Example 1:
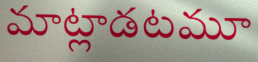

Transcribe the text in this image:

మాట్లాడటమూ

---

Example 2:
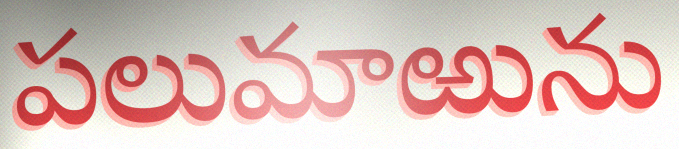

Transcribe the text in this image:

పలుమాఱును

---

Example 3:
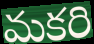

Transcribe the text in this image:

మకరి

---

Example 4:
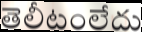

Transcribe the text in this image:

తెలీటంలేదు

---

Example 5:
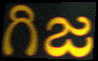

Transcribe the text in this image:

గిజ